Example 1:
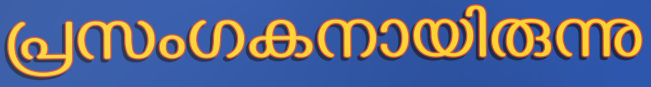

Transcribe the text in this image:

പ്രസംഗകനായിരുന്നു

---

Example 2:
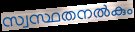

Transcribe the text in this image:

സ്വസ്ഥതനൽകും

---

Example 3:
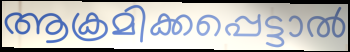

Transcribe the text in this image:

ആക്രമിക്കപ്പെട്ടാൽ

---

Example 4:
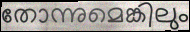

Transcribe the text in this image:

തോന്നുമെങ്കിലും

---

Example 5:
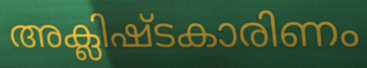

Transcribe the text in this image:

അക്ലിഷ്ടകാരിണം